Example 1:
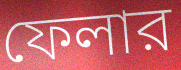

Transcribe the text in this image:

ফেলার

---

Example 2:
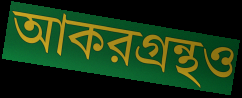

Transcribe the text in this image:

আকরগ্রন্থও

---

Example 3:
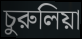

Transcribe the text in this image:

চুরুলিয়া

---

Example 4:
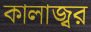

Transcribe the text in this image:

কালাজ্বর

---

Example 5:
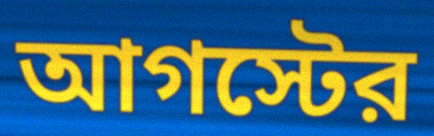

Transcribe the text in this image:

আগস্টের